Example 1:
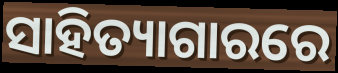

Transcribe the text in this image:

ସାହିତ୍ୟାଗାରରେ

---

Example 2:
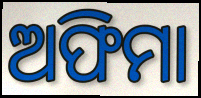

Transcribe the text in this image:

ଅଫିମା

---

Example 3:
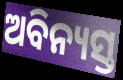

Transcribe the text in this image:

ଅବିନ୍ୟସ୍ତ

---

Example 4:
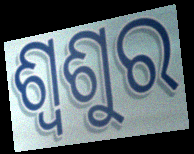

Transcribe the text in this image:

ଶ୍ଵଶୁର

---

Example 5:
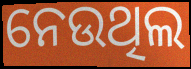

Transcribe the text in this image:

ନେଉଥିଲ